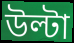
উল্টা